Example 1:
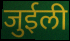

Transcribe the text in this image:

जुईली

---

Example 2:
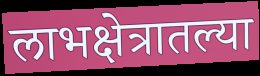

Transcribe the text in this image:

लाभक्षेत्रातल्या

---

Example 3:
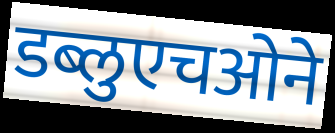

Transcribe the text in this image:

डब्लुएचओने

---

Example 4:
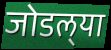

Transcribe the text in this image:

जोडल्या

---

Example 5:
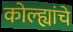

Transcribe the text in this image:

कोल्ह्यांचे